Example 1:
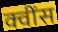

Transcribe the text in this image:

क्वींस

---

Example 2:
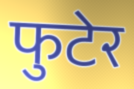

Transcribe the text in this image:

फुटेर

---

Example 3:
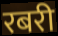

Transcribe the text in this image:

रबरी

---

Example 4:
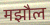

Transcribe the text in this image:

मझौल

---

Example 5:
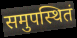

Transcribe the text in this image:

समुपस्थितं